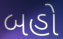
બહો